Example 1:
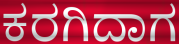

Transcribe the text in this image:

ಕರಗಿದಾಗ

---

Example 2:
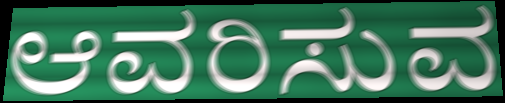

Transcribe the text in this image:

ಆವರಿಸುವ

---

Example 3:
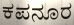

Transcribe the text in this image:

ಕಪನೂರ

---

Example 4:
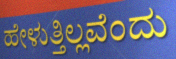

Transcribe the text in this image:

ಹೇಳುತ್ತಿಲ್ಲವೆಂದು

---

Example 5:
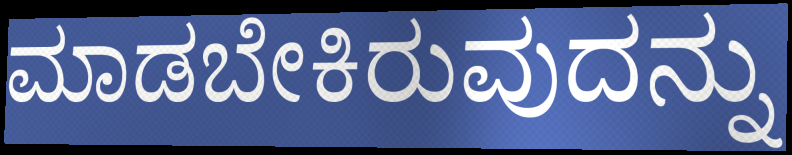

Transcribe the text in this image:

ಮಾಡಬೇಕಿರುವುದನ್ನು